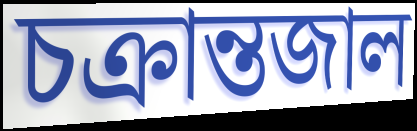
চক্রান্তজাল